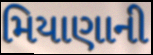
મિયાણાની